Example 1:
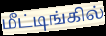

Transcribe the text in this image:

மீட்டிங்கில்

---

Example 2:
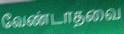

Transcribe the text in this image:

வேண்டாதவை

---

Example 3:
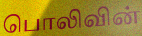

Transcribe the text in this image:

பொலிவின்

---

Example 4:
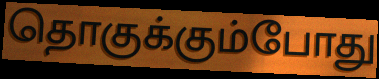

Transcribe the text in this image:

தொகுக்கும்போது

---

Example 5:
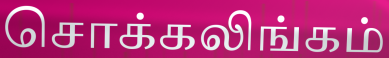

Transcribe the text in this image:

சொக்கலிங்கம்